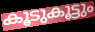
കൂടുകൂട്ടും